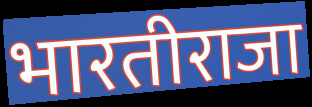
भारतीराजा